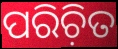
ପରିଚ଼ିତ